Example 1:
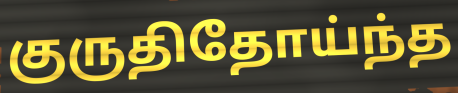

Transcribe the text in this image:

குருதிதோய்ந்த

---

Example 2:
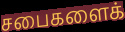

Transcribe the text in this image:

சபைகளைக்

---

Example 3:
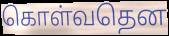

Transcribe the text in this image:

கொள்வதென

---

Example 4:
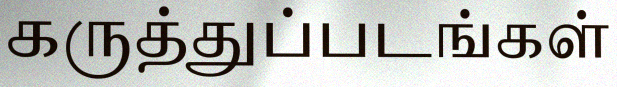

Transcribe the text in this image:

கருத்துப்படங்கள்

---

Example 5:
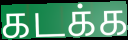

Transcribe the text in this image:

கடக்க